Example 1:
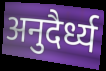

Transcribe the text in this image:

अनुदैर्ध्य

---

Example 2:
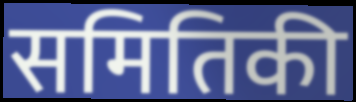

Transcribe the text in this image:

समितिकी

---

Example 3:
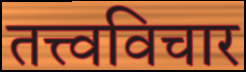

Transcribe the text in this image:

तत्त्वविचार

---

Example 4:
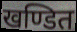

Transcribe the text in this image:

खण्डित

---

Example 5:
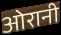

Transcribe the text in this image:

ओरानी